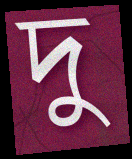
দু